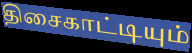
திசைகாட்டியும்